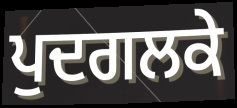
ਪੁਦਗਲਕੇ